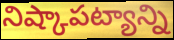
నిష్కాపట్యాన్ని